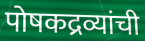
पोषकद्रव्यांची